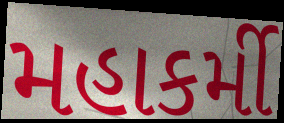
મહાકર્મી